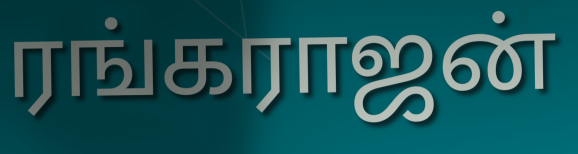
ரங்கராஜன்